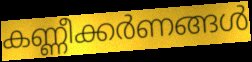
കണ്ണീക്കർണങ്ങൾ